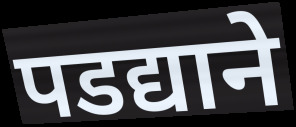
पडद्याने